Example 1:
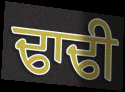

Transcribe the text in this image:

ਢਾਢੀ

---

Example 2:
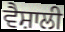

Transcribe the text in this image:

ਵੈਸ਼ਾਲੀ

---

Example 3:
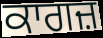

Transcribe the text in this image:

ਕਾਗਜ਼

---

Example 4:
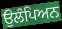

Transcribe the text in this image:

ਉਲੰਪਿਅਨ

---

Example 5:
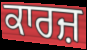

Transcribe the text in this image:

ਕਾਰਜ਼